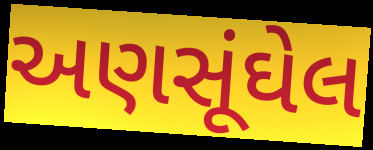
અણસૂંઘેલ